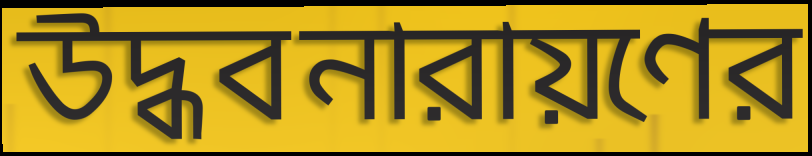
উদ্ধবনারায়ণের